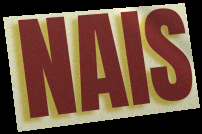
NAIS